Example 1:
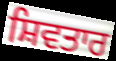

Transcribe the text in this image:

ਸ਼ਿਵਤਾਰ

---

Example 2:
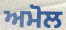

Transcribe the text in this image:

ਅਮੋਲ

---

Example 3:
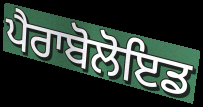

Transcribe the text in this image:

ਪੈਰਾਬੋਲੋਇਡ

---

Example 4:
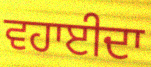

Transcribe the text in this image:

ਵਹਾਈਦਾ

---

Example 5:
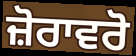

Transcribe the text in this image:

ਜ਼ੋਰਾਵਰੋ